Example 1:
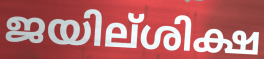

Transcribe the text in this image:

ജയില്ശിക്ഷ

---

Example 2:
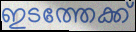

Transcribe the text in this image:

ഇടത്തേക്ക്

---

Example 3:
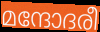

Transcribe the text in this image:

മന്ദോദരീ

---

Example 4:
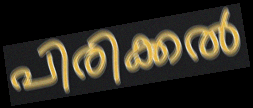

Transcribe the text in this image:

പിരിക്കൽ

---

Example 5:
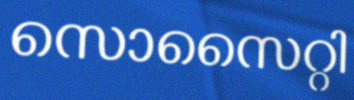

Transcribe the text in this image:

സൊസൈറ്റി